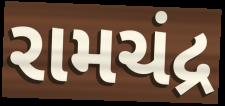
રામચંદ્ર